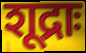
शूद्राः